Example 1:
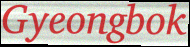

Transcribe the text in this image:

Gyeongbok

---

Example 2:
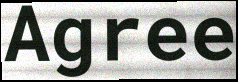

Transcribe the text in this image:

Agree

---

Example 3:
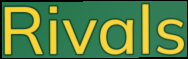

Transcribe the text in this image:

Rivals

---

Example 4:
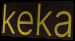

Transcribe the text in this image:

keka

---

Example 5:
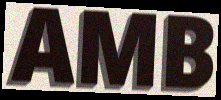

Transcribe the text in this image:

AMB